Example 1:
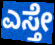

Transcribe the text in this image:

ಎಸ್ತೇ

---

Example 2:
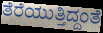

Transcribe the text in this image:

ತೆರೆಯುತ್ತಿದ್ದಂತೆ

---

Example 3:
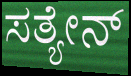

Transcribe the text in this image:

ಸತ್ಯೇನ್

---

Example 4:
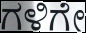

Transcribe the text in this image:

ಗಳಿಗೇ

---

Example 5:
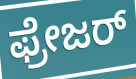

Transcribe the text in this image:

ಫ್ರೇಜರ್